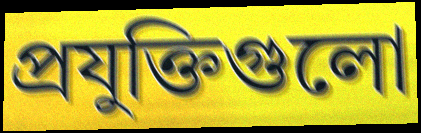
প্রযুক্তিগুলো